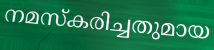
നമസ്കരിച്ചതുമായ